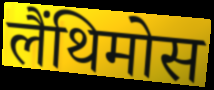
लैंथिमोस